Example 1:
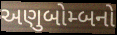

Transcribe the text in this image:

અણુબોમ્બનો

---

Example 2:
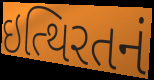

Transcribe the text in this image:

ઇત્થિરતનં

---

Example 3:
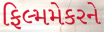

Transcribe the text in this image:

ફિલ્મમેકરને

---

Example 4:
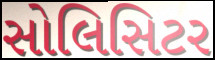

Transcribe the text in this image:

સોલિસિટર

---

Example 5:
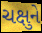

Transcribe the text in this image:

ચક્ષુને